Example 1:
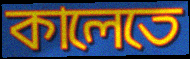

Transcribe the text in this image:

কালেতে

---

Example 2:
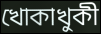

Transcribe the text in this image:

খোকাখুকী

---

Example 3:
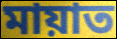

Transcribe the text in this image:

মায়াত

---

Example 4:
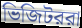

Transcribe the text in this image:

ভিজিটররা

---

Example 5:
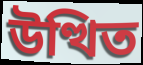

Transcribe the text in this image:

উত্থিত